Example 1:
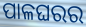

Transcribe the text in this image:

ପାଳଘରର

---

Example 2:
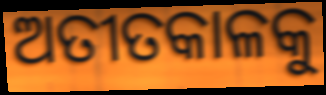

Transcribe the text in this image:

ଅତୀତକାଳକୁ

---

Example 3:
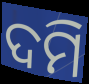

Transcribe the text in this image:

ଦମି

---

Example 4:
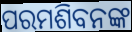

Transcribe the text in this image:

ପରମଶିବନଙ୍କ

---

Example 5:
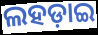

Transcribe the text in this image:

ଲହଡ଼ାଇ